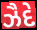
ઝૈદે